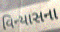
વિન્યાસના